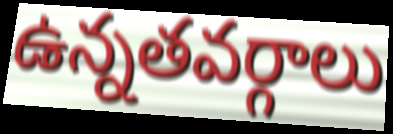
ఉన్నతవర్గాలు